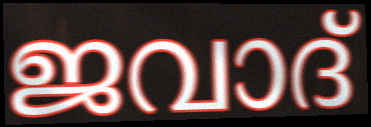
ജവാദ്